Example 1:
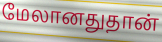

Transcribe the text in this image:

மேலானதுதான்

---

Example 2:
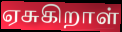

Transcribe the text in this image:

ஏசுகிறாள்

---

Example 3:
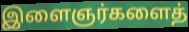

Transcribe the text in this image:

இளைஞர்களைத்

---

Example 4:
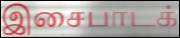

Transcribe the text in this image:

இசைபாடக்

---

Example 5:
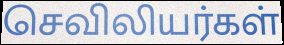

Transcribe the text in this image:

செவிலியர்கள்